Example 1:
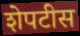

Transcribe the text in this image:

शेपटीस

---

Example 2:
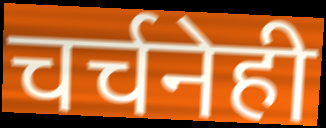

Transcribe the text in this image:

चर्चनेही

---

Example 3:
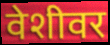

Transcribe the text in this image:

वेशीवर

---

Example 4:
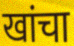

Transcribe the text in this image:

खांचा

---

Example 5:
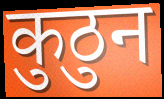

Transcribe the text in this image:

कुठुन